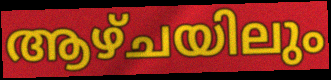
ആഴ്ചയിലും